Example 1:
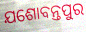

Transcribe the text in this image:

ଯଶୋବନ୍ତପୁର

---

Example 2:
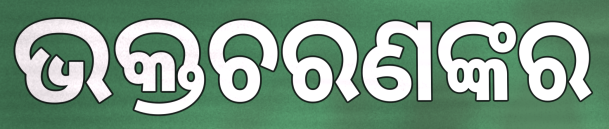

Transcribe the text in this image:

ଭକ୍ତଚରଣଙ୍କର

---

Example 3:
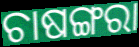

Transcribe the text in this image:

ଚାଷଙ୍ଗରା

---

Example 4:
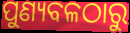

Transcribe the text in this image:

ପୁଣ୍ୟବଳଠାରୁ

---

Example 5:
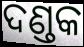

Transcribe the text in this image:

ଦଣ୍ଡକ